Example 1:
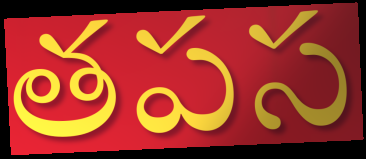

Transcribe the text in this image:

తపస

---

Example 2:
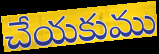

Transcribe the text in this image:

చేయకుము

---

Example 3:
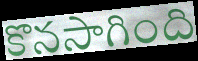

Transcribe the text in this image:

కొనసాగింది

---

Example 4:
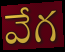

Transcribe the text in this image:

వేగ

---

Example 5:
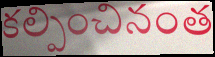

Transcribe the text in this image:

కల్పించినంత